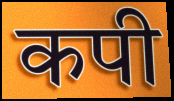
कपी